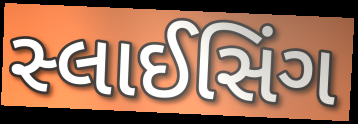
સ્લાઈસિંગ